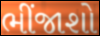
ભીંજાશો